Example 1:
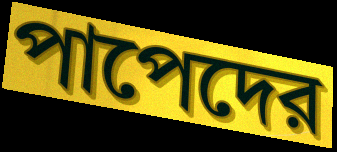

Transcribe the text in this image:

পাপেদের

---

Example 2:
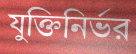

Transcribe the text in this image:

যুক্তিনির্ভর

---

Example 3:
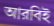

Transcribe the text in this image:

আরবিই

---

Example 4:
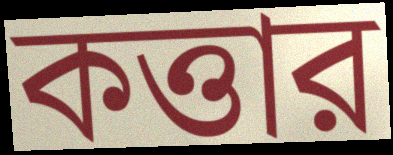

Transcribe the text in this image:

কত্তার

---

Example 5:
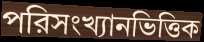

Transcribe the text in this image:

পরিসংখ্যানভিত্তিক